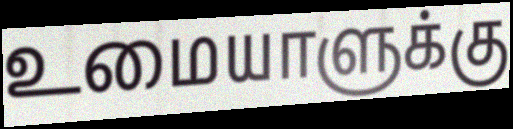
உமையாளுக்கு